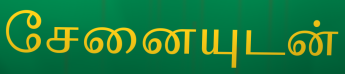
சேனையுடன்